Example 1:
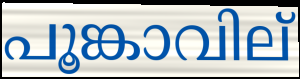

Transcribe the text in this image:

പൂങ്കാവില്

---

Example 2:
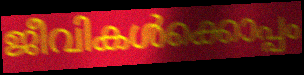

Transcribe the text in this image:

ജീവികൾക്കൊപ്പം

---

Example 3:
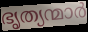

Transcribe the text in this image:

ഭൃത്യന്മാർ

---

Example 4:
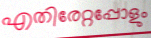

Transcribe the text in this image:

എതിരേറ്റപ്പോളും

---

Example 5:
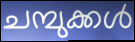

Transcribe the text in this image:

ചമ്പുക്കൾ